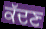
ਕੱਦਣ